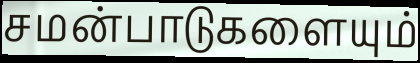
சமன்பாடுகளையும்